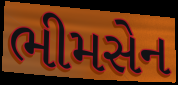
ભીમસેન